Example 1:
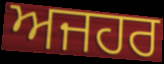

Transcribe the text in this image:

ਅਜਹਰ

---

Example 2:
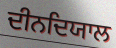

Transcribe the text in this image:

ਦੀਨਦਿਯਾਲ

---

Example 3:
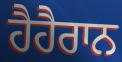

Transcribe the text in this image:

ਹੈਹੈਰਾਨ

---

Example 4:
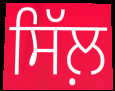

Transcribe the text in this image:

ਸਿੱਲ਼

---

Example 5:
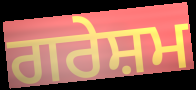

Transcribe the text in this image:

ਗਰੇਸ਼ਮ